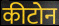
कीटोन